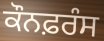
ਕੌਨਫ਼ਰੰਸ